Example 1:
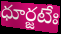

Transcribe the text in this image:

ధూర్జటేః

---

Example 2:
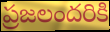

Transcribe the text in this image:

ప్రజలందరికి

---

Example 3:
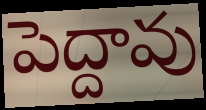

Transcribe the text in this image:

పెద్దావు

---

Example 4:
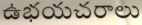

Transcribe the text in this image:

ఉభయచరాలు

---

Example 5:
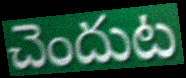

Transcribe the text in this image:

చెందుట